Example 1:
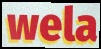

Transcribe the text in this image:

wela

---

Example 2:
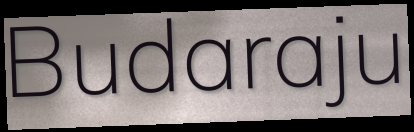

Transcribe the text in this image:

Budaraju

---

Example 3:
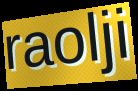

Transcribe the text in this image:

raolji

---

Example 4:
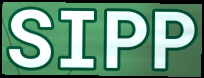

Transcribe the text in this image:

SIPP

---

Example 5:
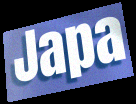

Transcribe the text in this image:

Japa